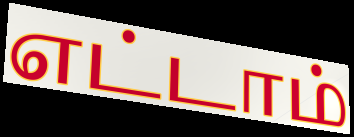
எட்டாம்